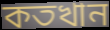
কতখান